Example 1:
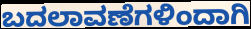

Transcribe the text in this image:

ಬದಲಾವಣೆಗಳಿಂದಾಗಿ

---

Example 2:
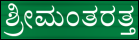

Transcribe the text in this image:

ಶ್ರೀಮಂತರತ್ತ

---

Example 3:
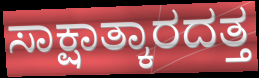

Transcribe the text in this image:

ಸಾಕ್ಷಾತ್ಕಾರದತ್ತ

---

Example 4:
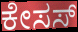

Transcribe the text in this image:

ಕೇಸಸ್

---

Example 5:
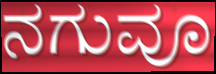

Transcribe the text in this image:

ನಗುವೂ